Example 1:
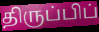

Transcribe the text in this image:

திருப்பிப்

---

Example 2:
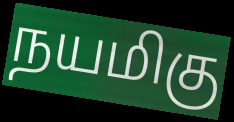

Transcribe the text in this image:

நயமிகு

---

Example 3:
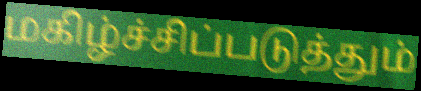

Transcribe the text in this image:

மகிழ்ச்சிப்படுத்தும்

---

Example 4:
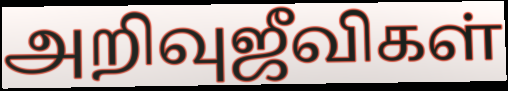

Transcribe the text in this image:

அறிவுஜீவிகள்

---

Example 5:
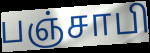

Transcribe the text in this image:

பஞ்சாபி